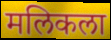
मलिकला